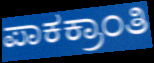
ಪಾಕಕ್ರಾಂತಿ